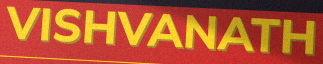
VISHVANATH